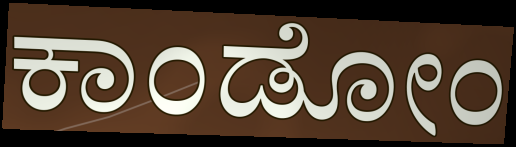
ಕಾಂಡೋಂ